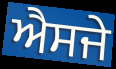
ਐਸਜੇ